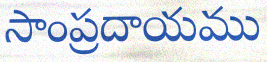
సాంప్రదాయము